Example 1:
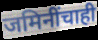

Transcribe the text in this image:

जमिनींचाही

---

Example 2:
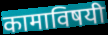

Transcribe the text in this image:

कामाविषयी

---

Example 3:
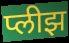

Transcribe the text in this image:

प्लीझ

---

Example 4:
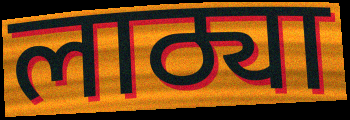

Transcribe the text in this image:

लाठ्या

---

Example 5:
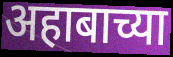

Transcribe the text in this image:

अहाबाच्या